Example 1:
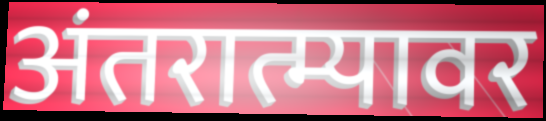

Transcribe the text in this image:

अंतरात्म्यावर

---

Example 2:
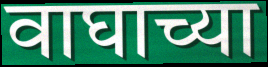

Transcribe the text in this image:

वाघाच्या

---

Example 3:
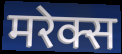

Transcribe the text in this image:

मरेक्स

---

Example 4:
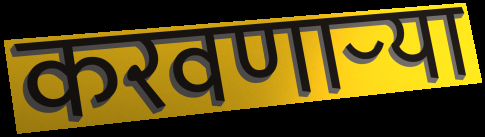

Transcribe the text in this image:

करवणाऱ्या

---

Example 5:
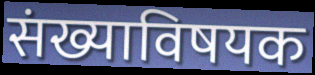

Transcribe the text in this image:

संख्याविषयक